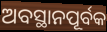
ଅବସ୍ଥାନପୂର୍ବକ